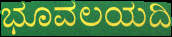
ಭೂವಲಯದಿ